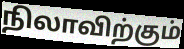
நிலாவிற்கும்